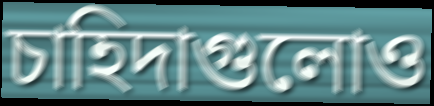
চাহিদাগুলোও